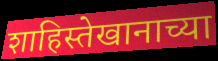
शाहिस्तेखानाच्या